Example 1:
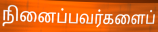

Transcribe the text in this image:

நினைப்பவர்களைப்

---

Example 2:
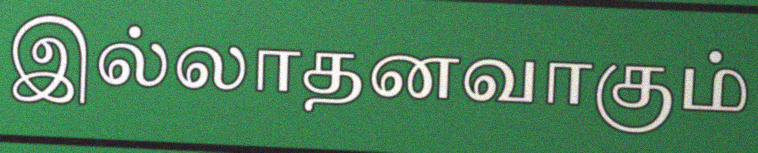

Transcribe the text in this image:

இல்லாதனவாகும்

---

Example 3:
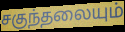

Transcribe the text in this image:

சகுந்தலையும்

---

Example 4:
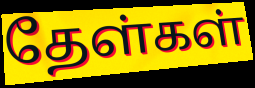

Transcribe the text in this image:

தேள்கள்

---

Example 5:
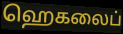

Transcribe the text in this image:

ஹெகலைப்